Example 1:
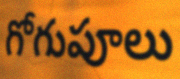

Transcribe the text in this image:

గోగుపూలు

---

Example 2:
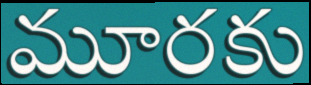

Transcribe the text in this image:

మూరకు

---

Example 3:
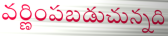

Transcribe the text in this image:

వర్ణింపబడుచున్నది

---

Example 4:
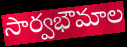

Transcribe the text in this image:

సార్వభౌమాల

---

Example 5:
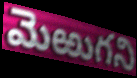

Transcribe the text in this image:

మెఱుగని